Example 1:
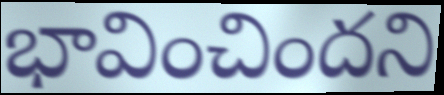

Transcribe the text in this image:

భావించిందని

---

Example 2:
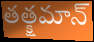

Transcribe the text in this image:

తత్క్షమాన్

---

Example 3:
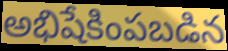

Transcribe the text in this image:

అభిషేకింపబడిన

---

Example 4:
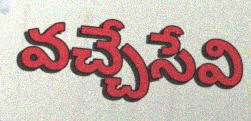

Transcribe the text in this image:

వచ్చేసేవి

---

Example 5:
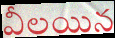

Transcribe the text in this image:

వీలయిన